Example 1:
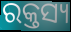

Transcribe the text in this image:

ରକ୍ତସ୍ୟ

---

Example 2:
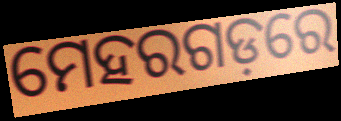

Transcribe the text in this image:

ମେହରଗଡ଼ରେ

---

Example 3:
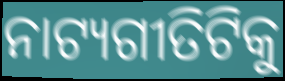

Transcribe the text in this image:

ନାଟ୍ୟଗୀତିଟିକୁ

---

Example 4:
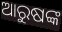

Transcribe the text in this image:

ଆରୁଷଙ୍କ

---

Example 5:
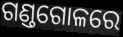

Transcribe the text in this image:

ଗଣ୍ଡଗୋଳରେ